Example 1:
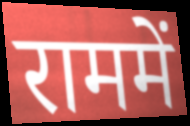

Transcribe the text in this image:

राममें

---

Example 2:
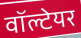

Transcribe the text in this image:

वॉल्टेयर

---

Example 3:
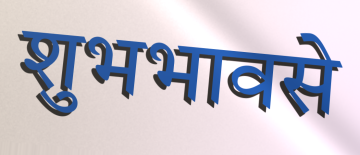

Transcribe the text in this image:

शुभभावसे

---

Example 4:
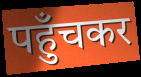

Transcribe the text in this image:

पहुँचकर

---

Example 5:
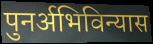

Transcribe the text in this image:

पुनर्अभिविन्यास